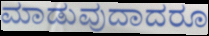
ಮಾಡುವುದಾದರೂ